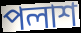
পলাশ